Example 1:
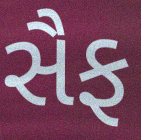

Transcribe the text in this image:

સૈફ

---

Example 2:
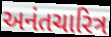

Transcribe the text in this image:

અનંતચારિત્ર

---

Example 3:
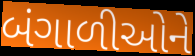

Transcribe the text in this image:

બંગાળીઓને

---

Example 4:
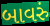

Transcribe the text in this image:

બાવરું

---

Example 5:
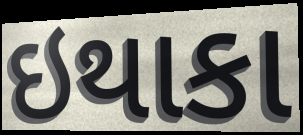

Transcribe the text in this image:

ઇથાકા